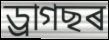
ড্ৰাগছৰ